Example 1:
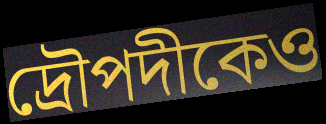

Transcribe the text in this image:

দ্রৌপদীকেও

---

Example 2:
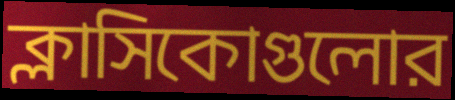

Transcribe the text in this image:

ক্লাসিকোগুলোর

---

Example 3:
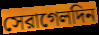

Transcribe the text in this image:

সেরাগেলদিন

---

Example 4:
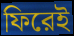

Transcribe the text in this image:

ফিরেই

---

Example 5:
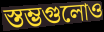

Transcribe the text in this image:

স্তম্ভগুলোও